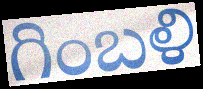
గింబళి